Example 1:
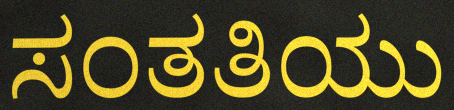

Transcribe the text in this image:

ಸಂತತಿಯು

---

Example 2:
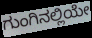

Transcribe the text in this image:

ಗುಂಗಿನಲ್ಲಿಯೇ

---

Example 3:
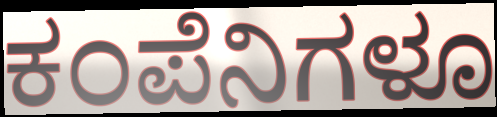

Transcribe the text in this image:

ಕಂಪೆನಿಗಳೂ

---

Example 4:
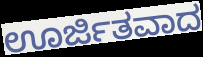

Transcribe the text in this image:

ಊರ್ಜಿತವಾದ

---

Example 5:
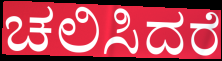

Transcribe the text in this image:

ಚಲಿಸಿದರೆ